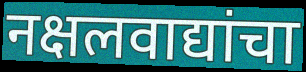
नक्षलवाद्यांचा